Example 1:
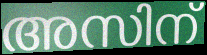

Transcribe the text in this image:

അസിന്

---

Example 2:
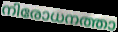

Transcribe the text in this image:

നിരോധനത്താ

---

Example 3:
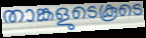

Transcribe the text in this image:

താങ്കളുടെകൂടെ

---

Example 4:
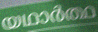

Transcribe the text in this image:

യഥാർത്ഥ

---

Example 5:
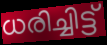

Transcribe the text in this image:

ധരിച്ചിട്ട്